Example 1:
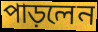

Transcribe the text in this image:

পাড়লেন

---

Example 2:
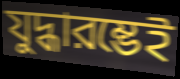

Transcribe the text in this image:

যুদ্ধারম্ভেই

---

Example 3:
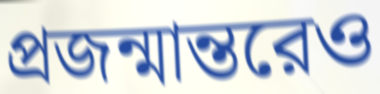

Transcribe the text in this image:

প্রজন্মান্তরেও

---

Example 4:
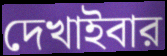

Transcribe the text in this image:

দেখাইবার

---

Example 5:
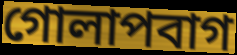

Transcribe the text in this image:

গোলাপবাগ